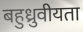
बहुध्रुवीयता